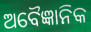
ଅବୈଜ୍ଞାନିକ